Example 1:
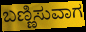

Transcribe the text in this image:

ಬಣ್ಣಿಸುವಾಗ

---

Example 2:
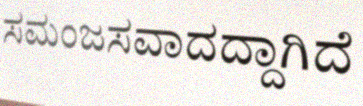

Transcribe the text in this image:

ಸಮಂಜಸವಾದದ್ದಾಗಿದೆ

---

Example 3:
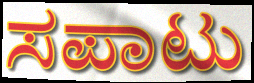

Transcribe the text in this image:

ಸಪಾಟು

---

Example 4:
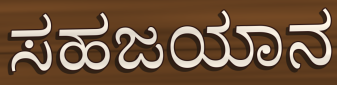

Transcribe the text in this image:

ಸಹಜಯಾನ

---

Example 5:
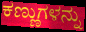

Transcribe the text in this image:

ಕಣ್ಣುಗಳನ್ನು